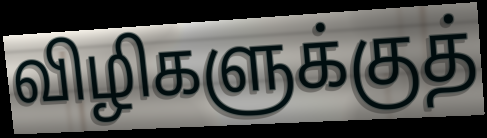
விழிகளுக்குத்